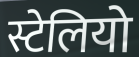
स्टेलियो